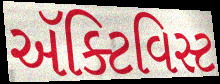
ઍક્ટિવિસ્ટ